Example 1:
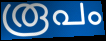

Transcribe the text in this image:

രൂപം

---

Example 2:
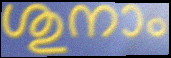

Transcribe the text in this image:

ശുനാം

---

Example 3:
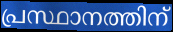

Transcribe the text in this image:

പ്രസ്ഥാനത്തിന്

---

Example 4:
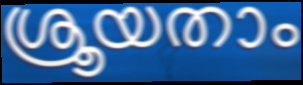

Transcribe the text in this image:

ശ്രൂയതാം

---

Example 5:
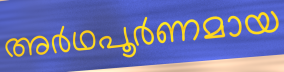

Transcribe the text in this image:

അർഥപൂർണമായ